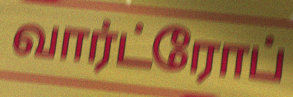
வார்ட்ரோப்